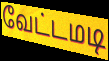
வேட்டமடி